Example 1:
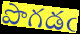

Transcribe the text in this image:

పొగడఁ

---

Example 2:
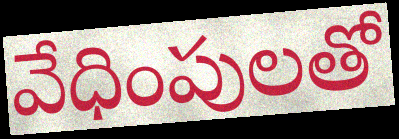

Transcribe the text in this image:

వేధింపులతో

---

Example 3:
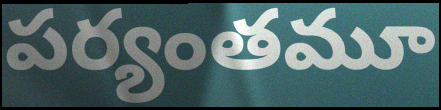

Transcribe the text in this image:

పర్యంతమూ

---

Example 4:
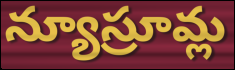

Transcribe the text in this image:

న్యూస్రూమ్ల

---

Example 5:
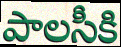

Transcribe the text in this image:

పాలసీకి